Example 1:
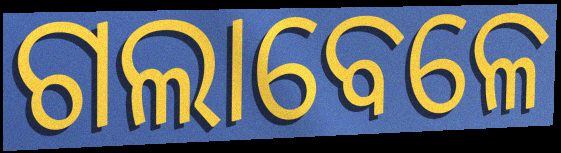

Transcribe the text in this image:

ଗଲାବେଳେ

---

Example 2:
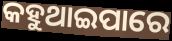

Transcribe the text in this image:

କହୁଥାଇପାରେ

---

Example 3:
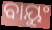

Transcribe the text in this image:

ବାୟୁଂ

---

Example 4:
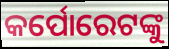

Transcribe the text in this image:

କର୍ପୋରେଟଙ୍କୁ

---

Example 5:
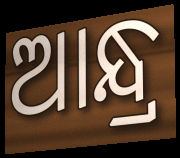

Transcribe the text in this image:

ଆନ୍ଧ୍ର